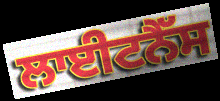
ਲਾਈਟਨੈੱਸ